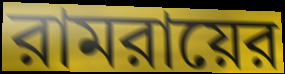
রামরায়ের